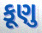
કૂણુ